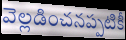
వెల్లడించనప్పటికీ